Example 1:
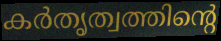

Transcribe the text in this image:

കർതൃത്വത്തിന്റെ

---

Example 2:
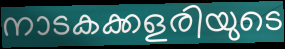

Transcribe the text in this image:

നാടകക്കളരിയുടെ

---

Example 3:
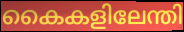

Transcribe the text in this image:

കൈകളിലേന്തി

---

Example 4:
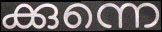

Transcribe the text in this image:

ക്കുന്നെ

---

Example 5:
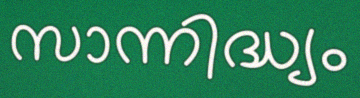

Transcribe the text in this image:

സാന്നിദ്ധ്യം